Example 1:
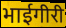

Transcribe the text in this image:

भाईगीरी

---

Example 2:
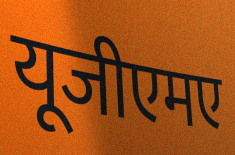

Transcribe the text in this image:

यूजीएमए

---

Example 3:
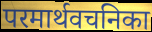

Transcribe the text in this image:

परमार्थवचनिका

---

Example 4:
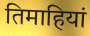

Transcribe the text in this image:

तिमाहियां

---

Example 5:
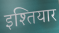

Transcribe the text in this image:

इश्तियार